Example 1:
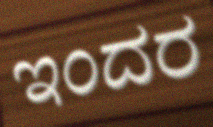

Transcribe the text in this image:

ಇಂದರ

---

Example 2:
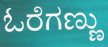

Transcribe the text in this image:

ಓರೆಗಣ್ಣು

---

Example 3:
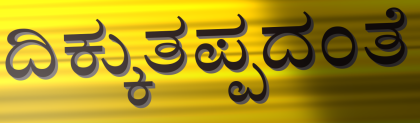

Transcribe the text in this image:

ದಿಕ್ಕುತಪ್ಪದಂತೆ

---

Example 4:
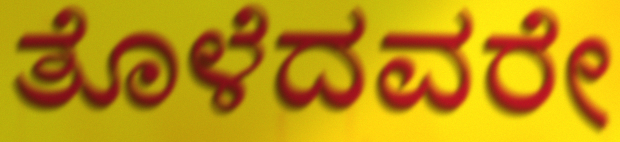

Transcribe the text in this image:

ತೊಳೆದವರೇ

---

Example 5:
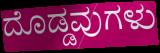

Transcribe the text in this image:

ದೊಡ್ಡವುಗಳು